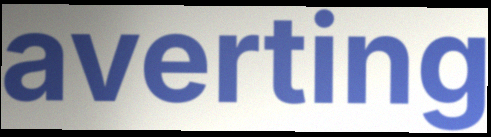
averting